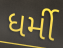
ધર્મી